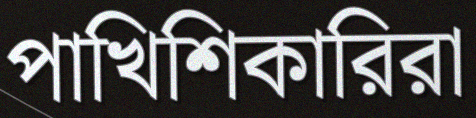
পাখিশিকারিরা